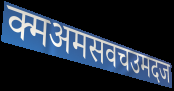
क्मअमसवचउमदज